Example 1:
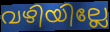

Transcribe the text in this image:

വഴിയില്ലേ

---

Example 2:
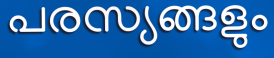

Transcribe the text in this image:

പരസ്യങ്ങളും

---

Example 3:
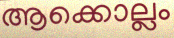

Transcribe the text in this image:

ആക്കൊല്ലം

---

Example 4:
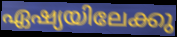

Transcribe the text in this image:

ഏഷ്യയിലേക്കു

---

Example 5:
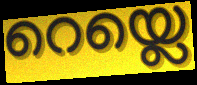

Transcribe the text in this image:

റെയ്ലെ